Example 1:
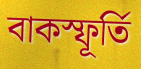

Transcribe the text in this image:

বাকস্ফূর্তি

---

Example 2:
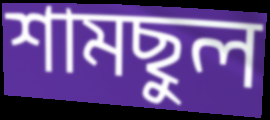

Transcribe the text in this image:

শামছুল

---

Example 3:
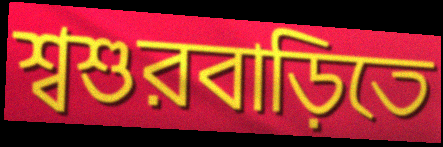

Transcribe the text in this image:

শ্বশুরবাড়িতে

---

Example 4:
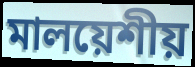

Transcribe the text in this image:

মালয়েশীয়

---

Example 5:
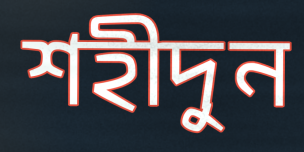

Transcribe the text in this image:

শহীদুন